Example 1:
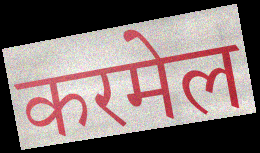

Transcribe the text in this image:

करमेल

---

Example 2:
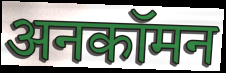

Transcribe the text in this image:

अनकॉमन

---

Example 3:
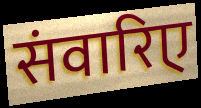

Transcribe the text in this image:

संवारिए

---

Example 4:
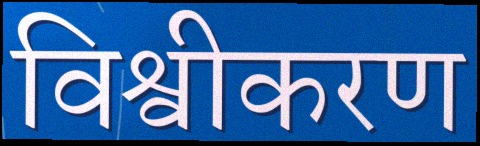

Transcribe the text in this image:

विश्वीकरण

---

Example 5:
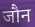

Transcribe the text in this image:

जौन